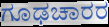
ಗೂಢಚಾರರ